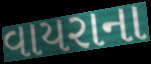
વાયરાના